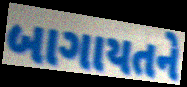
બાગાયતને